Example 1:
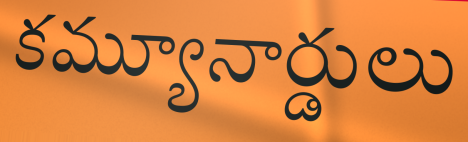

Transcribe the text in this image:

కమ్యూనార్డులు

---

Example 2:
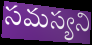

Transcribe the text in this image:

సమస్యని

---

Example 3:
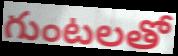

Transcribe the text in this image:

గుంటలతో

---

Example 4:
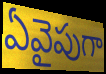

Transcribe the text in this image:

ఏవైపుగా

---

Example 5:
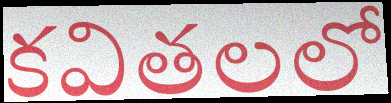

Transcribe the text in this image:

కవితలలో